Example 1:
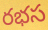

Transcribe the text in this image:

రభస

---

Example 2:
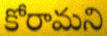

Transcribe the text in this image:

కోరామని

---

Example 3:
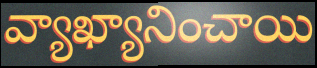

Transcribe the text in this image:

వ్యాఖ్యానించాయి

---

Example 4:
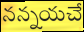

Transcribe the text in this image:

నన్నయచే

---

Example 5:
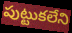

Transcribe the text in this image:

పుట్టుకలేని